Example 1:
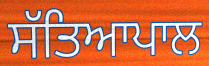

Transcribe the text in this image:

ਸੱਤਿਆਪਾਲ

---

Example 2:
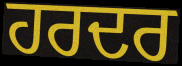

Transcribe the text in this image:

ਹਰਦਰ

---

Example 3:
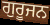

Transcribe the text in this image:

ਗੁਰੂਜਨ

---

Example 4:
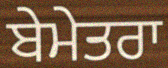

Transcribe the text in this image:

ਬੇਮੇਤਰਾ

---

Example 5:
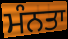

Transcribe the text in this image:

ਮੰਨਤਾ